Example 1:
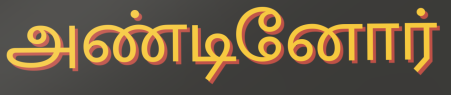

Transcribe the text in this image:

அண்டினோர்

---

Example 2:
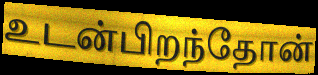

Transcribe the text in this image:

உடன்பிறந்தோன்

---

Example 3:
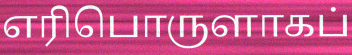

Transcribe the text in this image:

எரிபொருளாகப்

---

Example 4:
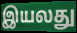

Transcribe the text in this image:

இயலது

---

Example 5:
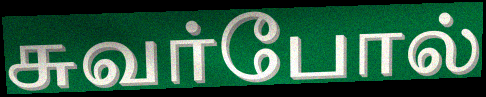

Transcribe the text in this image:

சுவர்போல்